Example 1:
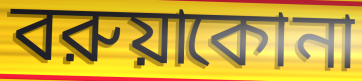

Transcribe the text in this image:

বরুয়াকোনা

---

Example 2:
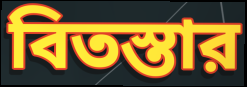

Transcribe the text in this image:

বিতস্তার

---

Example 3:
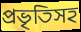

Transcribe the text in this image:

প্রভৃতিসহ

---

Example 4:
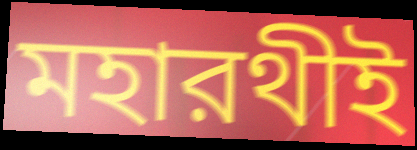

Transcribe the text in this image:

মহারথীই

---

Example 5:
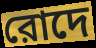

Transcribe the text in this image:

রোদে